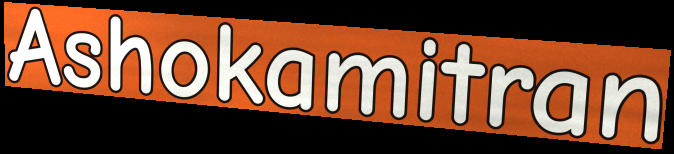
Ashokamitran